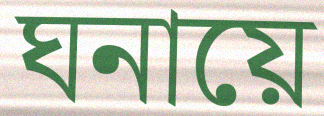
ঘনায়ে